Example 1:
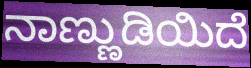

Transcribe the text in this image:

ನಾಣ್ಣುಡಿಯಿದೆ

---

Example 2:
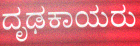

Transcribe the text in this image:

ದೃಢಕಾಯರು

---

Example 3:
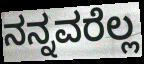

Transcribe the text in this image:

ನನ್ನವರೆಲ್ಲ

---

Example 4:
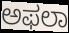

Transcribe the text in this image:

ಅಫಲಾ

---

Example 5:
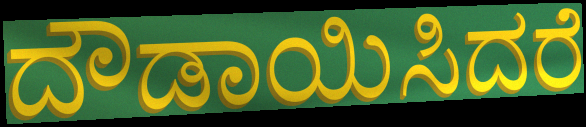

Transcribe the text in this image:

ದೌಡಾಯಿಸಿದರೆ